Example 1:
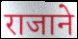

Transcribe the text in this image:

राजाने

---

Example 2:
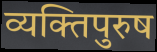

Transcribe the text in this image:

व्यक्तिपुरुष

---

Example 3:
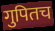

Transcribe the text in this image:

गुपितच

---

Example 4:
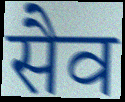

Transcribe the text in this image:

सैव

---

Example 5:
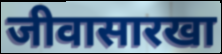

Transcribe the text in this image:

जीवासारखा